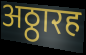
अठ्ठारह